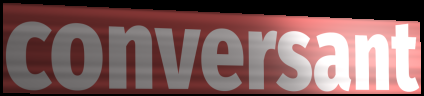
conversant